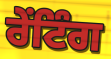
ਰੇਂਟਿੰਗ